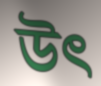
উৎ